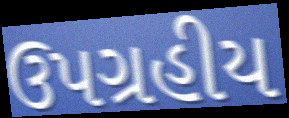
ઉપગ્રહીય